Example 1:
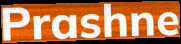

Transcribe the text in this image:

Prashne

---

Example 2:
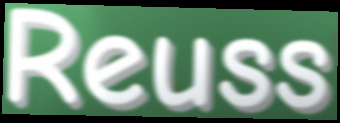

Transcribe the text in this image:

Reuss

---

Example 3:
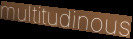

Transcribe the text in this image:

multitudinous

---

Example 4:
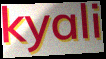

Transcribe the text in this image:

kyali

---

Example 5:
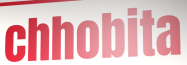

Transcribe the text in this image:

chhobita